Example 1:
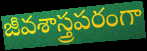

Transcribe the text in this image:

జీవశాస్త్రపరంగా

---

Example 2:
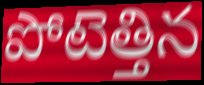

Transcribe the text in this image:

పోటెత్తిన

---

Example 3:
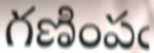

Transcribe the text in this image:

గణింపఁ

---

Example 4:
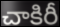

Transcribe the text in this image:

చాకిరీ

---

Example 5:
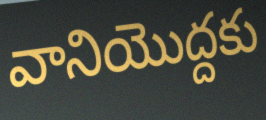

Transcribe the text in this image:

వానియొద్దకు